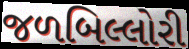
જળબિલ્લોરી